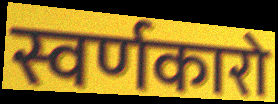
स्वर्णकारो